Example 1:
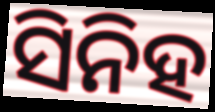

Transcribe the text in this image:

ସିନିହ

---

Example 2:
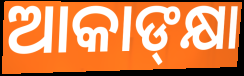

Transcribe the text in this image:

ଆକାଙ୍‍କ୍ଷା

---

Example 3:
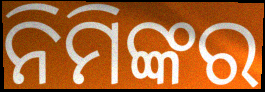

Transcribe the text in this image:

ନିମିଙ୍କର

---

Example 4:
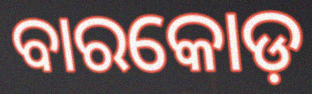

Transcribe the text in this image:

ବାରକୋଡ଼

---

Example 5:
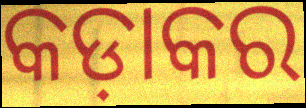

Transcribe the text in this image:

କଡ଼ାକର